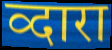
व्दारा